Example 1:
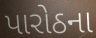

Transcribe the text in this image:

પારોઠના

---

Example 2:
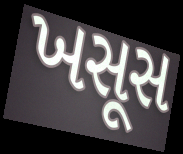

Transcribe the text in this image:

ખસૂસ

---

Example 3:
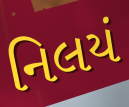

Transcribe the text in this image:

નિલયં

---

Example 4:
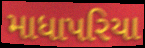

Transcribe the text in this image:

માધાપરિયા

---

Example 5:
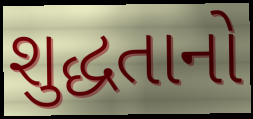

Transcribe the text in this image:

શુદ્ધતાનો